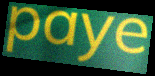
paye